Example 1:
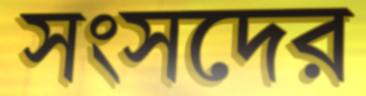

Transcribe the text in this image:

সংসদের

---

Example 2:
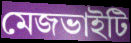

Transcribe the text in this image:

মেজভাইটি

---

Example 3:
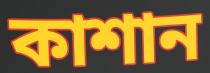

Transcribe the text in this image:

কাশান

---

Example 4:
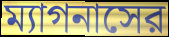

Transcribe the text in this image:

ম্যাগনাসের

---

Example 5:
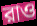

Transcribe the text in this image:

রাও